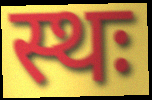
स्थः